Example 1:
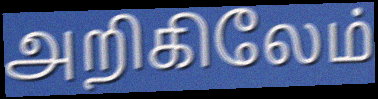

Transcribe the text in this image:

அறிகிலேம்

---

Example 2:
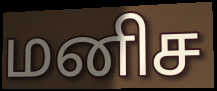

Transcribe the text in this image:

மனிச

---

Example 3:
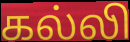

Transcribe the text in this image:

கல்லி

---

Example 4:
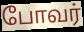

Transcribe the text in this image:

போவர்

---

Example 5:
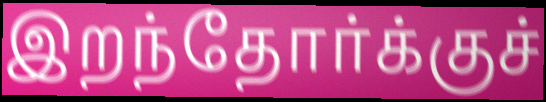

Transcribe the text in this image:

இறந்தோர்க்குச்